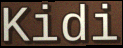
Kidi